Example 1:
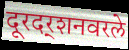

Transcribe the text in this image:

दूरदर्शनवरले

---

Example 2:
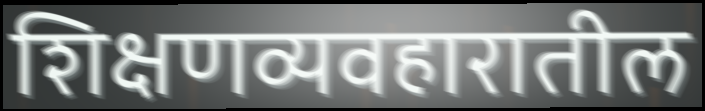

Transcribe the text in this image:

शिक्षणव्यवहारातील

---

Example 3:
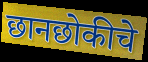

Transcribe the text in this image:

छानछोकीचे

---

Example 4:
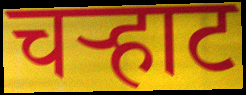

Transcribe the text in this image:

चऱ्हाट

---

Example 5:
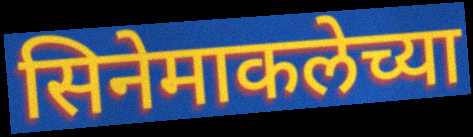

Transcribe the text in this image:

सिनेमाकलेच्या